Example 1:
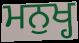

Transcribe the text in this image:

ਮਨੁਖ੍ਹ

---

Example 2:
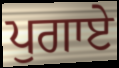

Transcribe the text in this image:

ਪੁਗਾਏ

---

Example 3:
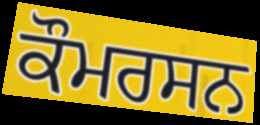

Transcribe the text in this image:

ਕੌਮਰਸਨ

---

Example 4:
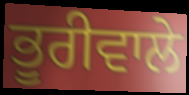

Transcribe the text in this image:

ਭੂਰੀਵਾਲੇ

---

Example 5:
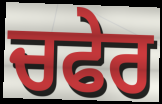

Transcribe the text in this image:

ਚਫੇਰ